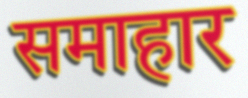
समाहार